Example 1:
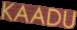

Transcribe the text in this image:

KAADU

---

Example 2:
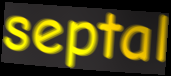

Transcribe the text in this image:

septal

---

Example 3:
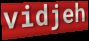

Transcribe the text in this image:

vidjeh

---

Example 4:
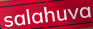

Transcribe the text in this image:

salahuva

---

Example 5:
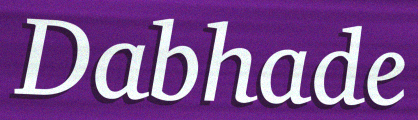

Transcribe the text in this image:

Dabhade